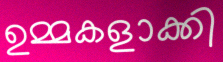
ഉമ്മകളാക്കി